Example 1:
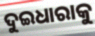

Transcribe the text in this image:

ଦୁଇଧାରାକୁ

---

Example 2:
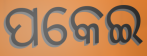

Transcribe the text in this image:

ପକେଇ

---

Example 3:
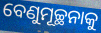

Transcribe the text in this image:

ବେଣୁମୂଚ୍ଛନାକୁ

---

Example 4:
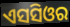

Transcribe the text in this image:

ଏସସିଓର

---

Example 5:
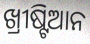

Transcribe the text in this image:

ଖ୍ରୀଷ୍ଟିଆନ